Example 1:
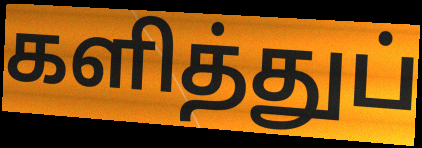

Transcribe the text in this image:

களித்துப்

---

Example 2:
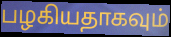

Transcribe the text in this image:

பழகியதாகவும்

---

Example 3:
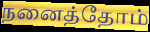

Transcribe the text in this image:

நனைத்தோம்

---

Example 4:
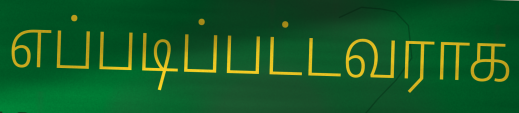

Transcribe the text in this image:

எப்படிப்பட்டவராக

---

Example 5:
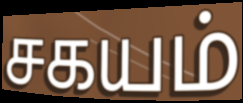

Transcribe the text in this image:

சகயம்